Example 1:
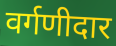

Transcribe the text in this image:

वर्गणीदार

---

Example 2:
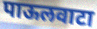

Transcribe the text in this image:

पाऊलवाटा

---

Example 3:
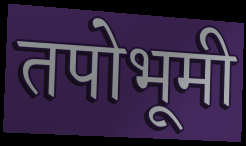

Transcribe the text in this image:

तपोभूमी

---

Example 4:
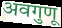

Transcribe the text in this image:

अवगुणू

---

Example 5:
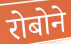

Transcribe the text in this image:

रोबोने